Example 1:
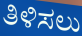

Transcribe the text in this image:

ತಿಳಿಸಲು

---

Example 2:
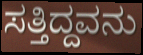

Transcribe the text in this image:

ಸತ್ತಿದ್ದವನು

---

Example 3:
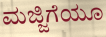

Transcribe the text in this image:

ಮಜ್ಜಿಗೆಯೂ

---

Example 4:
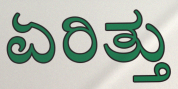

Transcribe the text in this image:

ಏರಿತ್ತು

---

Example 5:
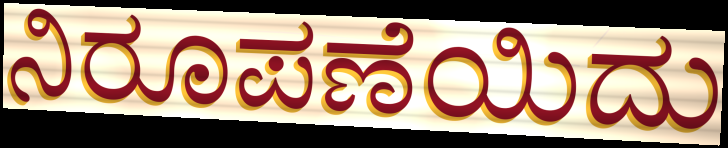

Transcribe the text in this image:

ನಿರೂಪಣೆಯಿದು